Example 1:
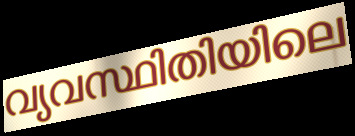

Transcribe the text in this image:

വ്യവസ്ഥിതിയിലെ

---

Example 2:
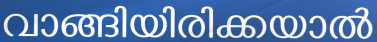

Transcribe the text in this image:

വാങ്ങിയിരിക്കയാൽ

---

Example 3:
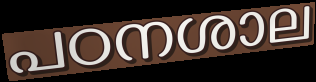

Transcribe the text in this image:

പഠനശാല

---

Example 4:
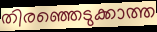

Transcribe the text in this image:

തിരഞ്ഞെടുക്കാത്ത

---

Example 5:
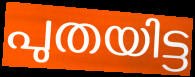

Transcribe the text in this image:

പുതയിട്ട